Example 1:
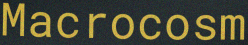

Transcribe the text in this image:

Macrocosm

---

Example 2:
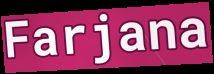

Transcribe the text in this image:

Farjana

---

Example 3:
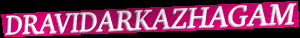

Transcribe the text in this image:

DRAVIDARKAZHAGAM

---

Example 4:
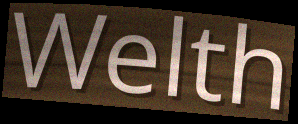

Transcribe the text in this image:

Welth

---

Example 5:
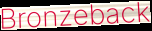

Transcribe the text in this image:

Bronzeback